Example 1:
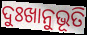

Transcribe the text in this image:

ଦୁଃଖାନୁଭୂତି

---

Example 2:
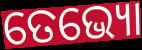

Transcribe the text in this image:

ତେଭ୍ୟୋ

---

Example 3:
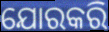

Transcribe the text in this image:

ଯୋରକରି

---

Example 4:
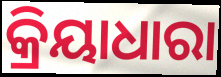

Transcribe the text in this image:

କ୍ରିୟାଧାରା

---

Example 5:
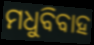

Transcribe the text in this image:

ମଧୁବିବାହ